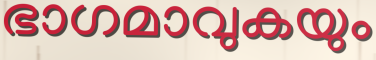
ഭാഗമാവുകയും